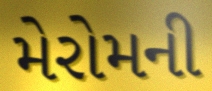
મેરોમની